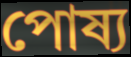
পোষ্য